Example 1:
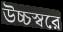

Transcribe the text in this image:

উচ্চস্বরে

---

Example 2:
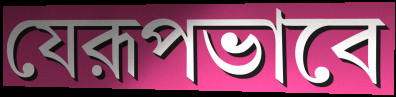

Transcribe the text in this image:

যেরূপভাবে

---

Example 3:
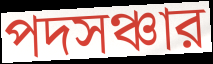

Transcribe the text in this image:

পদসঞ্চার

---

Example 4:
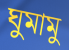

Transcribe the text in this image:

ঘুমামু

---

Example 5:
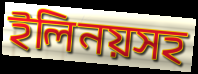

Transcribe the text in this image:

ইলিনয়সহ